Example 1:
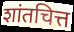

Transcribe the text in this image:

शांतचित्त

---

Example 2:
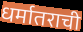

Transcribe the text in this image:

धर्मातराची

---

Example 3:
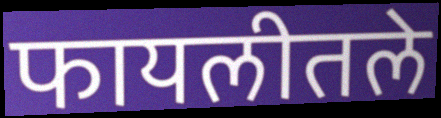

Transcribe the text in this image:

फायलीतले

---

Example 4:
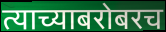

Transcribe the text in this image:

त्याच्याबरोबरच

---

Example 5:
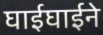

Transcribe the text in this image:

घाईघाईने